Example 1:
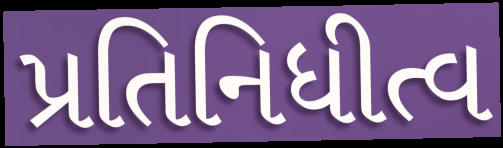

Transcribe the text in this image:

પ્રતિનિધીત્વ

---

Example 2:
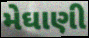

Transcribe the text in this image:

મેઘાણી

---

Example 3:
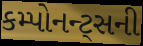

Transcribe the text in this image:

કમ્પોનન્ટ્સની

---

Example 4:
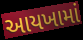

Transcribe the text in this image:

આયખામાં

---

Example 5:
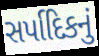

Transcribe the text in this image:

સર્પાદિકનું